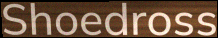
Shoedross